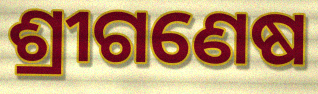
ଶ୍ରୀଗଣେଷ